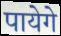
पायेगे